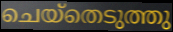
ചെയ്തെടുത്തു